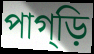
পাগ্ড়ি